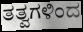
ತತ್ವಗಳಿಂದ